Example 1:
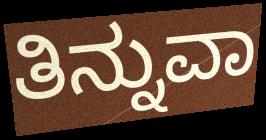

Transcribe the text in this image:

ತಿನ್ನುವಾ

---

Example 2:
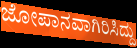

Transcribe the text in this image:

ಜೋಪಾನವಾಗಿರಿಸಿದ್ದು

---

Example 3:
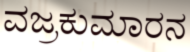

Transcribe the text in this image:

ವಜ್ರಕುಮಾರನ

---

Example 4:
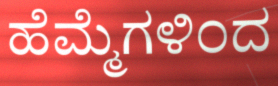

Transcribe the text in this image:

ಹೆಮ್ಮೆಗಳಿಂದ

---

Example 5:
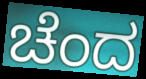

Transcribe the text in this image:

ಚೆಂದ